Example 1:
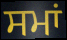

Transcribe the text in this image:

ਸਮਾਂ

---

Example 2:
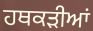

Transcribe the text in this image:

ਹਥਕੜੀਆਂ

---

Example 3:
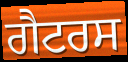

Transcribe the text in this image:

ਗੈਟਰਸ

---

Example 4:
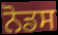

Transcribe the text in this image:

ਨੋਡਸ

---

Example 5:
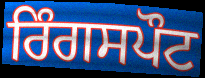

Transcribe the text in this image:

ਰਿੰਗਸਪੌਟ